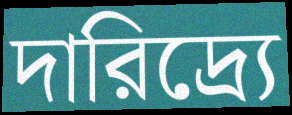
দারিদ্র্যে